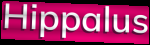
Hippalus